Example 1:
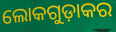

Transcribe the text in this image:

ଲୋକଗୁଡ଼ାକର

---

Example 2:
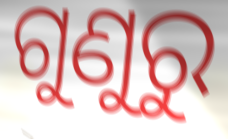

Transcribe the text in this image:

ଗୁଣୁରୁ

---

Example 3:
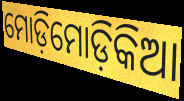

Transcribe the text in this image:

ମୋଡ଼ିମୋଡ଼ିକିଆ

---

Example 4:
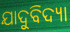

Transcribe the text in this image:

ଯାଦୁବିଦ୍ୟା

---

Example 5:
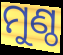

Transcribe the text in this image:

ମୁଣ୍ଠ